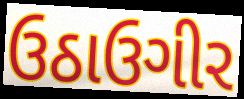
ઉઠાઉગીર